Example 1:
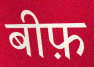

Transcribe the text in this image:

बीफ़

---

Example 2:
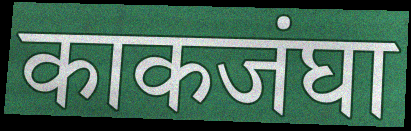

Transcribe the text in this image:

काकजंघा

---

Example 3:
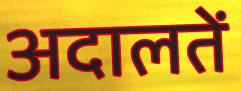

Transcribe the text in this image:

अदालतें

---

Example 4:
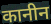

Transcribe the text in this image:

कानीन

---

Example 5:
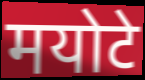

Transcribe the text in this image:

मयोटे